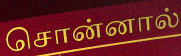
சொன்னால்